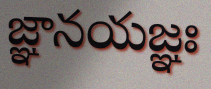
జ్ఞానయజ్ఞః